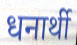
धनार्थी